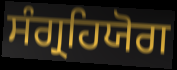
ਸੰਗ੍ਰਹਿਯੋਗ